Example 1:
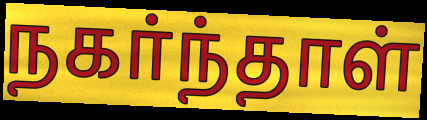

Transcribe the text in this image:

நகர்ந்தாள்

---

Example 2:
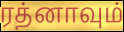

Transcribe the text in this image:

ரத்னாவும்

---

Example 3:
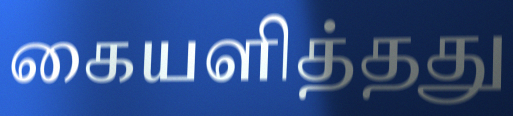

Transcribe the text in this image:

கையளித்தது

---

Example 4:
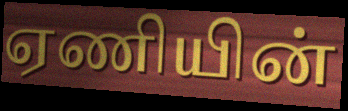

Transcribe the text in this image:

ஏணியின்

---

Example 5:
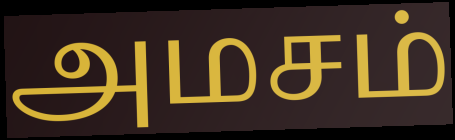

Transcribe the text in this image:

அமசம்